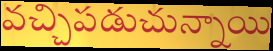
వచ్చిపడుచున్నాయి